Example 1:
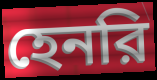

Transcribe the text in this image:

হেনরি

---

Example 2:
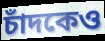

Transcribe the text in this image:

চাঁদকেও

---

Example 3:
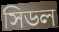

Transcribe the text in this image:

সিডল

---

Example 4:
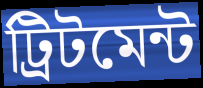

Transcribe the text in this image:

ট্রিটমেন্ট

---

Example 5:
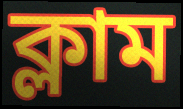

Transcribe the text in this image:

ক্লাম